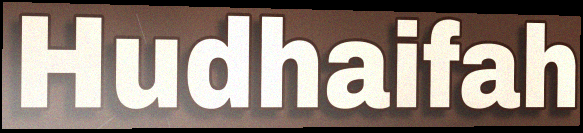
Hudhaifah